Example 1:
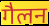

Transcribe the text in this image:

गैलन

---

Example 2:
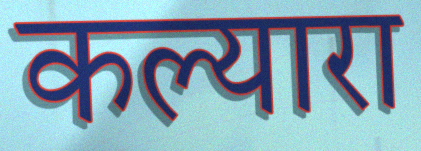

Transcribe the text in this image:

कल्यारा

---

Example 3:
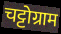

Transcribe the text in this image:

चट्टोग्राम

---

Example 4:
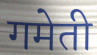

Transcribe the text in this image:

गमेती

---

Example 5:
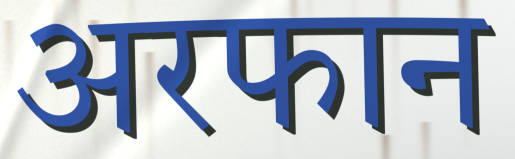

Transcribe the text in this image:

अरफान